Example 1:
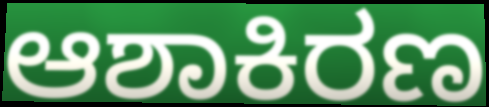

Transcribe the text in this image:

ಆಶಾಕಿರಣ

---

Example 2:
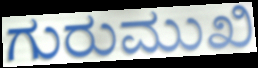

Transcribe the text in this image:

ಗುರುಮುಖಿ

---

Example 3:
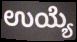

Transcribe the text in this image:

ಉಯ್ಯೆ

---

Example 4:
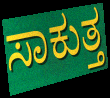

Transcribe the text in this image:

ಸಾಕುತ್ತ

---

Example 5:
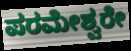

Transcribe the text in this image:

ಪರಮೇಶ್ವರೇ